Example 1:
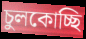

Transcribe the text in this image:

চুলকোচ্ছি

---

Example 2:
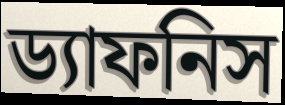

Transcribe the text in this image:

ড্যাফনিস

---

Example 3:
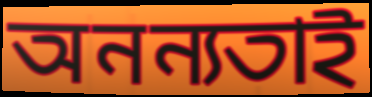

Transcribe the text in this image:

অনন্যতাই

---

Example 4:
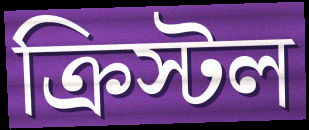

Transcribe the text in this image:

ক্রিস্টল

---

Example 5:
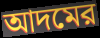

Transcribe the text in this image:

আদমের